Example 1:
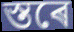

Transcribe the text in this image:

স্তৰে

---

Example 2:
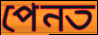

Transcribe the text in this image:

পেনত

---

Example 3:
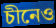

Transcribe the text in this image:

চীনেও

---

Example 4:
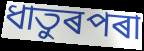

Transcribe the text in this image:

ধাতুৰপৰা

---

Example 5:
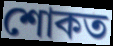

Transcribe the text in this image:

শোকত